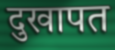
दुखापत